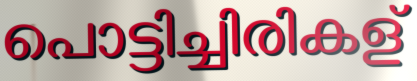
പൊട്ടിച്ചിരികള്